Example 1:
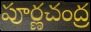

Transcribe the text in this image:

పూర్ణచంద్ర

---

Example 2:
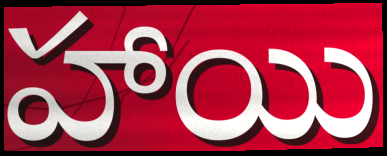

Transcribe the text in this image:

హాయి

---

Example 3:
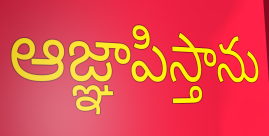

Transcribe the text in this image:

ఆజ్ఞాపిస్తాను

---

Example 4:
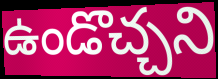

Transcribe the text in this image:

ఉండొచ్చని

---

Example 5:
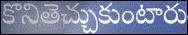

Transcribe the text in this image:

కొనితెచ్చుకుంటారు